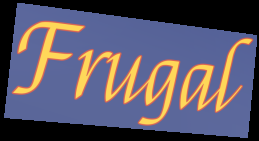
Frugal